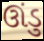
ઊંડુ